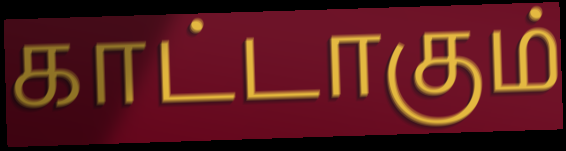
காட்டாகும்